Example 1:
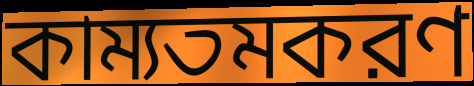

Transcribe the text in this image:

কাম্যতমকরণ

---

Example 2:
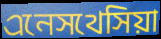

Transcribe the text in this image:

এনেসথেসিয়া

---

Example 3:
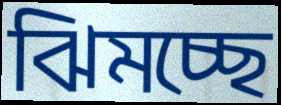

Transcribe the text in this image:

ঝিমচ্ছে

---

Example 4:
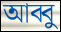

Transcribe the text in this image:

আব্বু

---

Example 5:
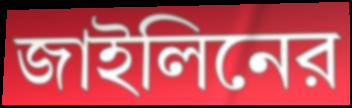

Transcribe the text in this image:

জাইলিনের